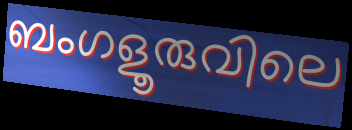
ബംഗളൂരുവിലെ